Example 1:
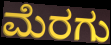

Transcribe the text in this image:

ಮೆರಗು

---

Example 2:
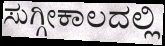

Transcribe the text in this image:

ಸುಗ್ಗೀಕಾಲದಲ್ಲಿ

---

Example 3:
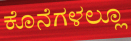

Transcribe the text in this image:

ಕೊನೆಗಳಲ್ಲೂ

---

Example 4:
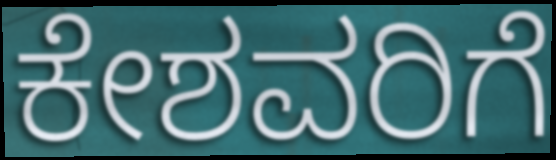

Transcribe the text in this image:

ಕೇಶವರಿಗೆ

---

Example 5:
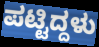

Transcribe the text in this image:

ಪಟ್ಟಿದ್ದಳು